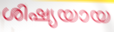
ശിഷ്യയായ